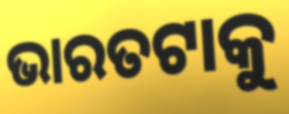
ଭାରତଟାକୁ